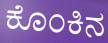
ಕೊಂಕಿನ